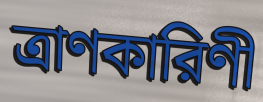
ত্রাণকারিণী